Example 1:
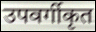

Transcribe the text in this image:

उपवर्गीकृत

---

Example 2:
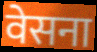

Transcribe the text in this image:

वेसना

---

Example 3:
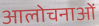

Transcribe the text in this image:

आलोचनाओं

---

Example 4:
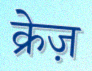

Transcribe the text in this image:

क्रेज़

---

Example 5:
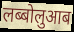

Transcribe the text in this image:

लब्बोलुआब